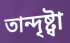
তান্দৃষ্ট্বা